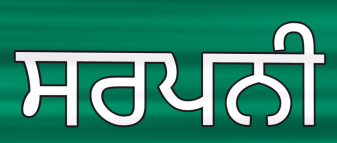
ਸਰਪਨੀ